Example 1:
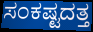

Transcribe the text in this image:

ಸಂಕಷ್ಟದತ್ತ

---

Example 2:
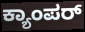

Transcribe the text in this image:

ಕ್ಯಾಂಪರ್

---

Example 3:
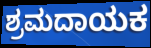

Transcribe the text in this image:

ಶ್ರಮದಾಯಕ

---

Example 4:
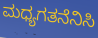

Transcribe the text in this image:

ಮಧ್ಯಗತನೆನಿಸಿ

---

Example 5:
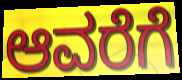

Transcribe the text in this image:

ಆವರೆಗೆ